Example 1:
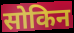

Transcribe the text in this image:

सोकिन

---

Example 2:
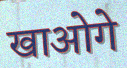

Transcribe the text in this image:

खाओगे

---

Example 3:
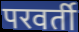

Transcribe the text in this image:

परवर्ती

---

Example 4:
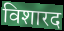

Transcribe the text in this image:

विशारद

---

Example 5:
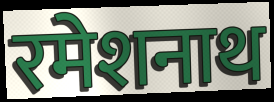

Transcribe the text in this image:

रमेशनाथ